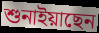
শুনাইয়াছেন